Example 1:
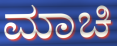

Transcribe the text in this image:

ಮಾಚಿ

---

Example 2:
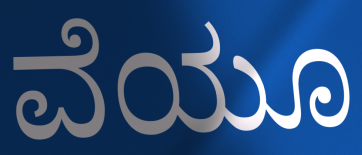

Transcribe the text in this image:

ವೆಯೂ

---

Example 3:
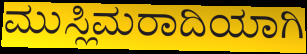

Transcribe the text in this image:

ಮುಸ್ಲಿಮರಾದಿಯಾಗಿ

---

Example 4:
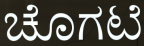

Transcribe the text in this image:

ಚೊಗಟೆ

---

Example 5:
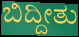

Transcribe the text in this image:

ಬಿದ್ದೀತು